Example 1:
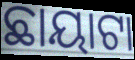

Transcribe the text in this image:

ଛାୟାଟା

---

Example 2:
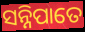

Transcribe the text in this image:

ସନ୍ନିପାତେ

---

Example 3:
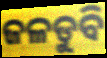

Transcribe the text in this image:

ଜଳଡୁବି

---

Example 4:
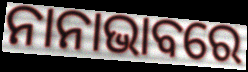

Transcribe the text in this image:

ନାନାଭାବରେ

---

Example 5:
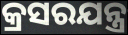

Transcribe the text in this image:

କ୍ରସରଯନ୍ତ୍ର